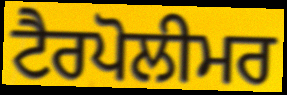
ਟੈਰਪੋਲੀਮਰ